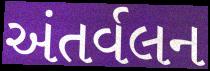
અંતર્વલન